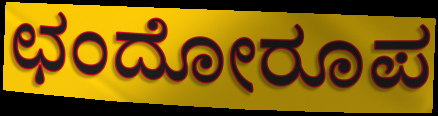
ಛಂದೋರೂಪ